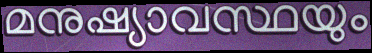
മനുഷ്യാവസ്ഥയും